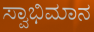
ಸ್ವಾಭಿಮಾನ